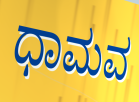
ಧಾಮವ